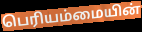
பெரியம்மையின்